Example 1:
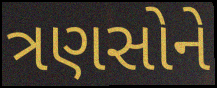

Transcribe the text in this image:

ત્રણસોને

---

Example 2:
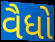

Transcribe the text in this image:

વૈધો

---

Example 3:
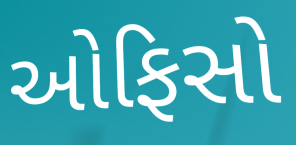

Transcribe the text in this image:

ઓફિસો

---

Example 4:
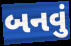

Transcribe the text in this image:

બનવું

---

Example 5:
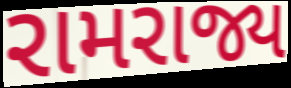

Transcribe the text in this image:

રામરાજ્ય